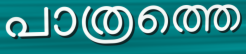
പാത്രത്തെ